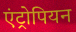
एंट्रोपियन